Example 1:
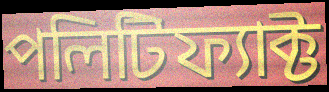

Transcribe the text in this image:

পলিটিফ্যাক্ট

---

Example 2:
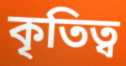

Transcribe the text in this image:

কৃতিত্ব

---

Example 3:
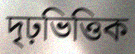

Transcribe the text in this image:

দৃঢ়ভিত্তিক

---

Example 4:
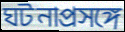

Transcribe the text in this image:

ঘটনাপ্রসঙ্গে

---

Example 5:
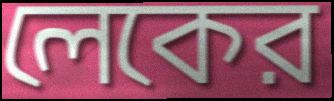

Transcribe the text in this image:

লেকের